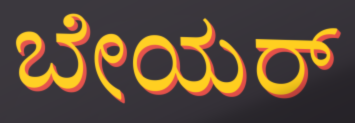
ಬೇಯರ್